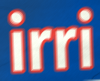
irri